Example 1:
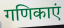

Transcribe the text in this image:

गणिकाएं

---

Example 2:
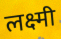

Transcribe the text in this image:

लक्ष्मी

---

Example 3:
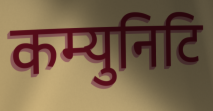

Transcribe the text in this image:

कम्युनिटि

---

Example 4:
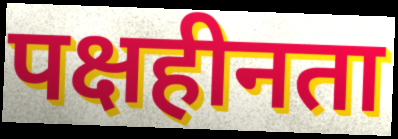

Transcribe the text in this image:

पक्षहीनता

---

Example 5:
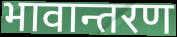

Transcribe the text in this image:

भावान्तरण